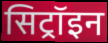
सिट्रॉइन